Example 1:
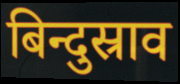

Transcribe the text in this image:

बिन्दुस्राव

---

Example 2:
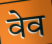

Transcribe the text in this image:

वेव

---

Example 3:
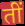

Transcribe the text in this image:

तीं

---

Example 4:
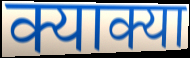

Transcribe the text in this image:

क्याक्या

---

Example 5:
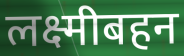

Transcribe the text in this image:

लक्ष्मीबहन